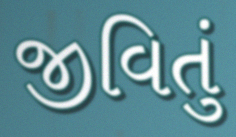
જીવિતું